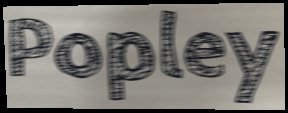
Popley